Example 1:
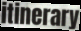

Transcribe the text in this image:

itinerary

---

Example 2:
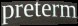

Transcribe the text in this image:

preterm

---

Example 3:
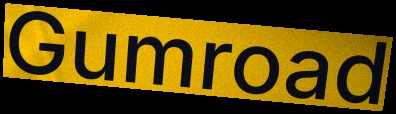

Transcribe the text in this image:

Gumroad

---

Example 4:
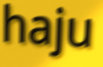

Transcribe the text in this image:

haju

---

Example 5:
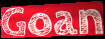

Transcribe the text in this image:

Goan